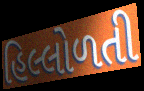
હિલ્લોળતી